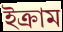
ইক্ৰাম